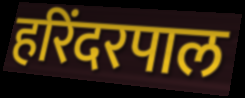
हरिंदरपाल